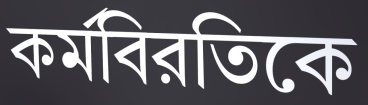
কর্মবিরতিকে